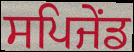
ਸਪਿਜੇਂਡ